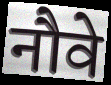
नौवे